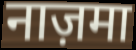
नाज़मा